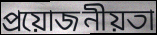
প্রয়োজনীয়তা